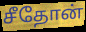
சீதோன்